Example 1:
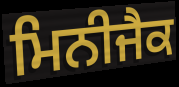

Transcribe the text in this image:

ਮਿਨੀਜੈਕ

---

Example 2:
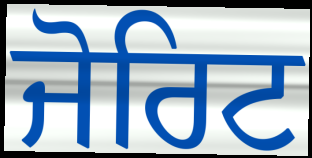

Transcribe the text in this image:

ਜੋਰਿਟ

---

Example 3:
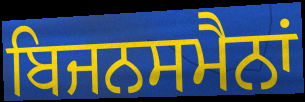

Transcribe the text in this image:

ਬਿਜਨਸਮੈਨਾਂ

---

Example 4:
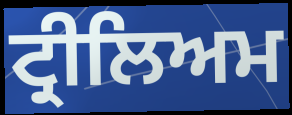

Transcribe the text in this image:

ਟ੍ਰੀਲਿਅਮ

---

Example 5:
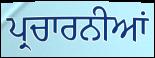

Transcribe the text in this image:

ਪ੍ਰਚਾਰਨੀਆਂ